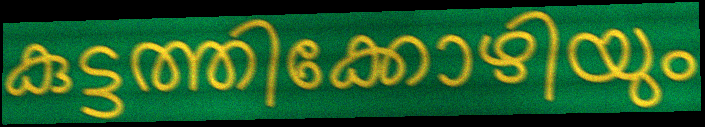
കുട്ടത്തിക്കോഴിയും